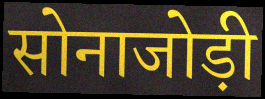
सोनाजोड़ी